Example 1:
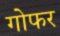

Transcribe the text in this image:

गोफर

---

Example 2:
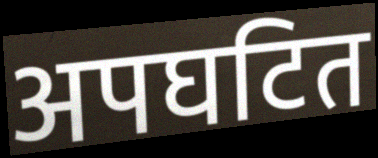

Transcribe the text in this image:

अपघटित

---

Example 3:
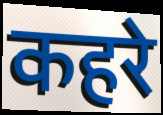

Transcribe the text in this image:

कहरे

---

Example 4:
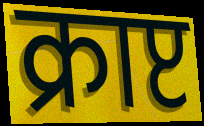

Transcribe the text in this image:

क्राप्ट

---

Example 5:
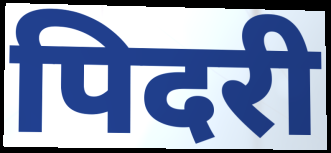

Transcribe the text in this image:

पिदरी